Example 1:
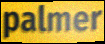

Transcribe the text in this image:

palmer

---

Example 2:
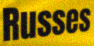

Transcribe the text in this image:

Russes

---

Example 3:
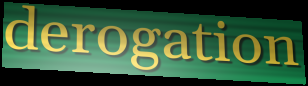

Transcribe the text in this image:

derogation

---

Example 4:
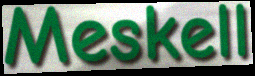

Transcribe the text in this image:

Meskell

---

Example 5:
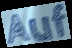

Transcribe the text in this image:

Auf